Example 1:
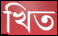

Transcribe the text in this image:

খিত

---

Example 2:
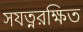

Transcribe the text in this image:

সযত্নরক্ষিত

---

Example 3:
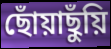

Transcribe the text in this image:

ছোঁয়াছুঁয়ি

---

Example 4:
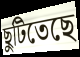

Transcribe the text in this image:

ছুটিতেছে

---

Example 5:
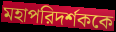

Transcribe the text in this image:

মহাপরিদর্শককে